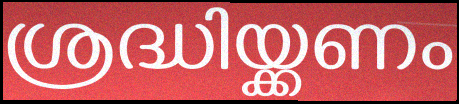
ശ്രദ്ധിയ്ക്കണം